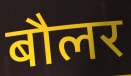
बौलर